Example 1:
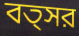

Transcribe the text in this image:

বত্সর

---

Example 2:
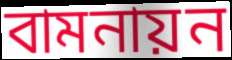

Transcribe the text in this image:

বামনায়ন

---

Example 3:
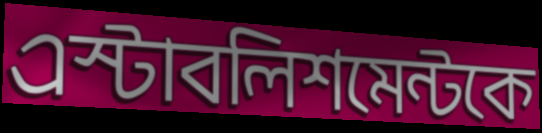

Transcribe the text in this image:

এস্টাবলিশমেন্টকে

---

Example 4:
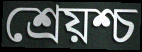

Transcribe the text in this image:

শ্রেয়শ্চ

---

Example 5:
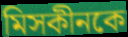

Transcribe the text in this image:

মিসকীনকে